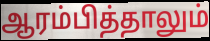
ஆரம்பித்தாலும்